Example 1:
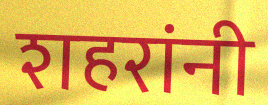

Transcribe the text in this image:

शहरांनी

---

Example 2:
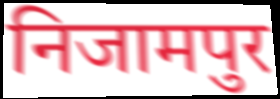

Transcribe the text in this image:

निजामपुर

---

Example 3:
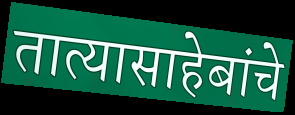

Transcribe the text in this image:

तात्यासाहेबांचे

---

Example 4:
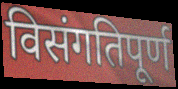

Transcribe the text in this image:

विसंगतिपूर्ण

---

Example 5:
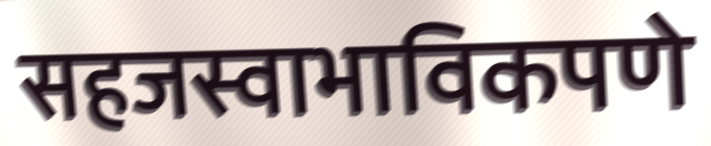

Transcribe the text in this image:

सहजस्वाभाविकपणे